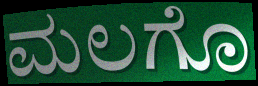
ಮಲಗೊ